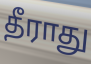
தீராது